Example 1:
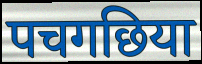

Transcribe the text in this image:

पचगछिया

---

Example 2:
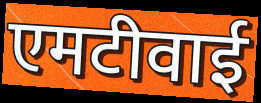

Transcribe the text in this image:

एमटीवाई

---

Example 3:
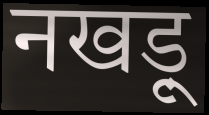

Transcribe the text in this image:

नखड़ू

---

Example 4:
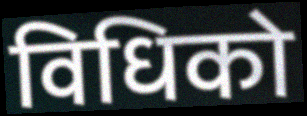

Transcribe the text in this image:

विधिको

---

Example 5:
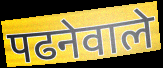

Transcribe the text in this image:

पढनेवाले